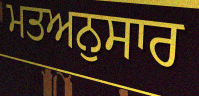
ਮਤਅਨੁਸਾਰ